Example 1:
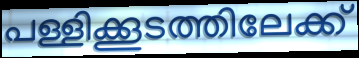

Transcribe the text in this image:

പള്ളിക്കൂടത്തിലേക്ക്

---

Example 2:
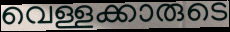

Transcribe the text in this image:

വെള്ളക്കാരുടെ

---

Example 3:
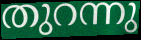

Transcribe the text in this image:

തുറന്നു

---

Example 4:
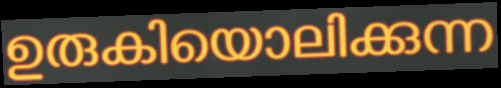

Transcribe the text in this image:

ഉരുകിയൊലിക്കുന്ന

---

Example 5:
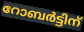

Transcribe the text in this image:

റോബർട്ടിന്